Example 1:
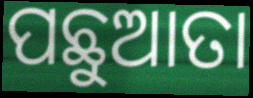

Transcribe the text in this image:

ପଛୁଆତା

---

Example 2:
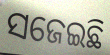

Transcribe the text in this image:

ସଜେଇଛି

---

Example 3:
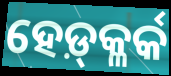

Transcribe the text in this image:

ହେଡ଼୍‍କ୍ଳର୍କ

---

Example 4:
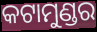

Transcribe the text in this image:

କଟାମୁଣ୍ଡର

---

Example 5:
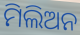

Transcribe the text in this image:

ମିଲିଅନ